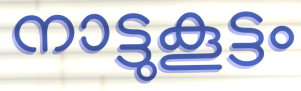
നാട്ടുകൂട്ടം